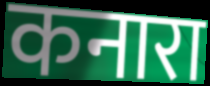
कनारा